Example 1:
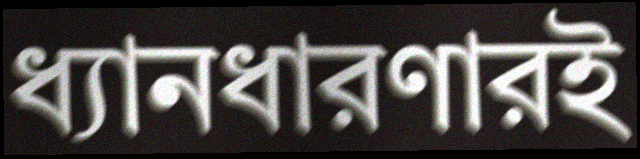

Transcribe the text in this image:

ধ্যানধারণারই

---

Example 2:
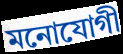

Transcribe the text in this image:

মনোযোগী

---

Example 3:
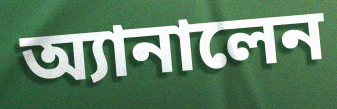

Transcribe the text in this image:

অ্যানালেন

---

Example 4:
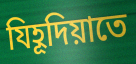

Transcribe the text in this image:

যিহূদিয়াতে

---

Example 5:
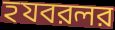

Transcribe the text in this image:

হযবরলর